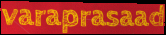
varaprasaad